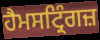
ਹੈਮਸਟ੍ਰਿੰਗਜ਼